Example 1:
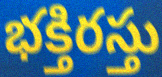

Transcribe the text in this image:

భక్తిరస్తు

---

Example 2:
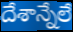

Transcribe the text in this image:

దేశాన్నేలే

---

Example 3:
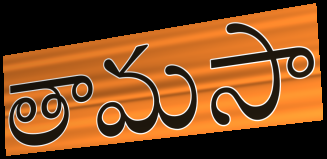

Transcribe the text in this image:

తామసా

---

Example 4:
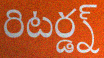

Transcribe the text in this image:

రిటర్డ్న్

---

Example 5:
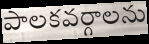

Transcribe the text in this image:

పాలకవర్గాలను